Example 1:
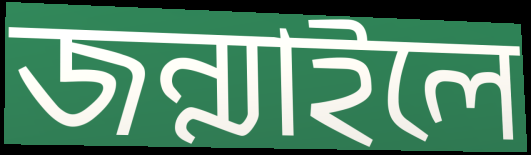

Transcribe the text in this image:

জন্মাইলে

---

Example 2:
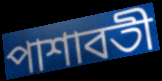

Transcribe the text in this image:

পাশাবতী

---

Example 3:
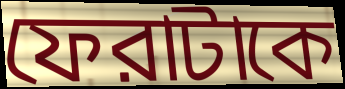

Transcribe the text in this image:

ফেরাটাকে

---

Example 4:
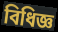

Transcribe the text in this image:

বিধিজ্ঞ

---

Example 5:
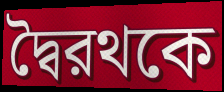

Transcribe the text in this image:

দ্বৈরথকে